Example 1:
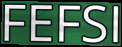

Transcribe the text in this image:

FEFSI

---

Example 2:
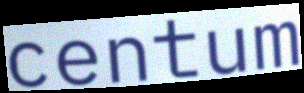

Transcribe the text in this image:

centum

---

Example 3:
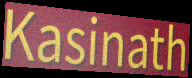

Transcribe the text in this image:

Kasinath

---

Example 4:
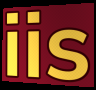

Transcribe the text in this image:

iis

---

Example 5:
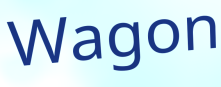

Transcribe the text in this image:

Wagon